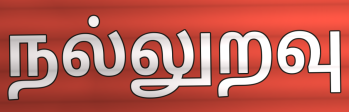
நல்லுறவு